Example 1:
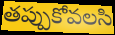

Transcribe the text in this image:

తప్పుకోవలసి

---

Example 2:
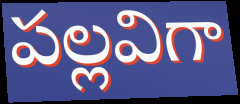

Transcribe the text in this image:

పల్లవిగా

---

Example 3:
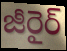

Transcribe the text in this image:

జీరైర్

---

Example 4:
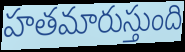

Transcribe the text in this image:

హతమారుస్తుంది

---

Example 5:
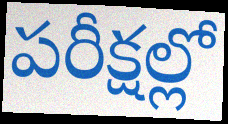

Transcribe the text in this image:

పరీక్షల్లో